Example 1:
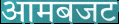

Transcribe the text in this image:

आमबजट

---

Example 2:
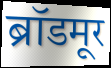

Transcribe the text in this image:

ब्रॉडमूर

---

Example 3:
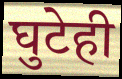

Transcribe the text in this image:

घुटेही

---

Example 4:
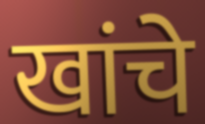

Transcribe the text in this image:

खांचे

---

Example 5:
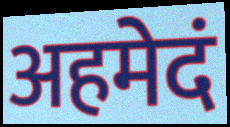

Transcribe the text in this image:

अहमेदं